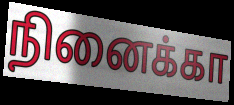
நினைக்கா